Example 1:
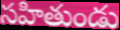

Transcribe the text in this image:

సహితుండు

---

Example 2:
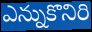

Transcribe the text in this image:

ఎన్నుకొనిరి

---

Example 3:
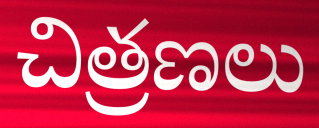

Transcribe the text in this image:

చిత్రణలు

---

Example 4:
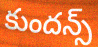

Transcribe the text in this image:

కుందన్స్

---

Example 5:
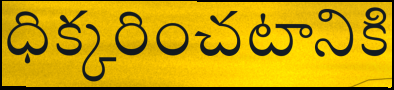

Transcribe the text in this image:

ధిక్కరించటానికి